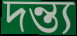
দন্ত্য